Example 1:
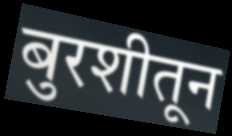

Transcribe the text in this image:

बुरशीतून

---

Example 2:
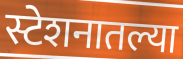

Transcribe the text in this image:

स्टेशनातल्या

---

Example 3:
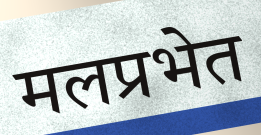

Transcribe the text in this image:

मलप्रभेत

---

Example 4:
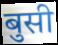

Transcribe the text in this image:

बुसी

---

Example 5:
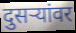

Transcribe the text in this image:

दुसर्‍यांवर